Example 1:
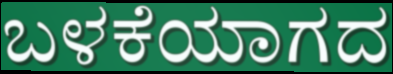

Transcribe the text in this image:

ಬಳಕೆಯಾಗದ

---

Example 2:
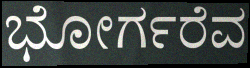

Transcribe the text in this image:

ಭೋರ್ಗರೆವ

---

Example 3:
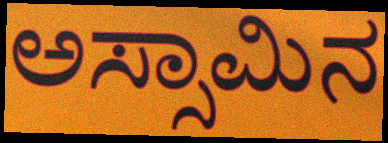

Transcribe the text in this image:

ಅಸ್ಸಾಮಿನ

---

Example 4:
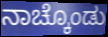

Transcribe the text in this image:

ನಾಚ್ಕೊಂಡು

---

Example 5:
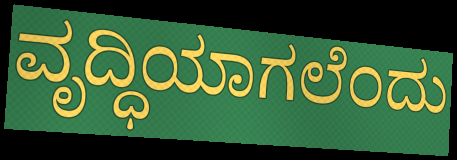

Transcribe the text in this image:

ವೃದ್ಧಿಯಾಗಲೆಂದು